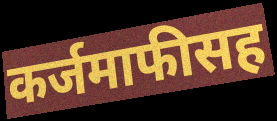
कर्जमाफीसह